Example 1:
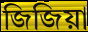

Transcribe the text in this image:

জিজিয়া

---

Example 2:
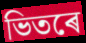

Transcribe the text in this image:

ভিতৰে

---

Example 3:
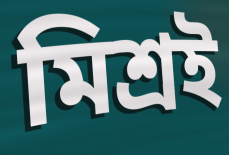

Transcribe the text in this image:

মিশ্ৰই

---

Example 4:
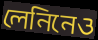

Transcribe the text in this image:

লেনিনেও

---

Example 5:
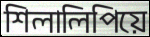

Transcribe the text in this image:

শিলালিপিয়ে